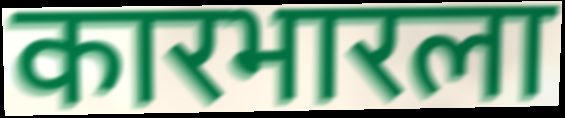
कारभारला